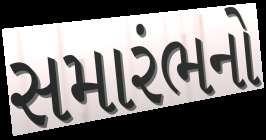
સમારંભનો